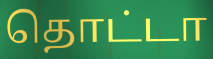
தொட்டா